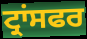
ਟ੍ਰਾਂਸਫਰ